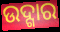
ଉଦ୍ଗାର